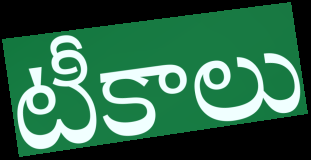
టీకాలు